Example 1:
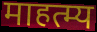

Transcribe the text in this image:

माहत्म्य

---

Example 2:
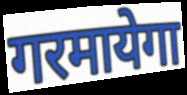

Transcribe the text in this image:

गरमायेगा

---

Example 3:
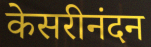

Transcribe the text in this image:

केसरीनंदन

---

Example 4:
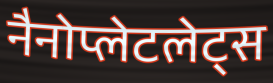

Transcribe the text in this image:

नैनोप्लेटलेट्स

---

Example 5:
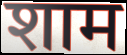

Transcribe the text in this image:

शाम